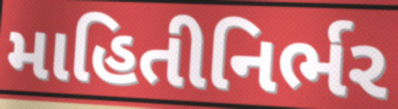
માહિતીનિર્ભર